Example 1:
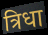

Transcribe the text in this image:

त्रिधा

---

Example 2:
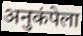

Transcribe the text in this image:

अनुकंपेला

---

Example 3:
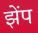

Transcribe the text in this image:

झेंप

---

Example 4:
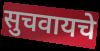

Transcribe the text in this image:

सुचवायचे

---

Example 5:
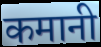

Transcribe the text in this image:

कमानी